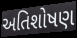
અતિશોષણ